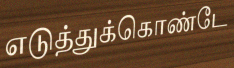
எடுத்துக்கொண்டே